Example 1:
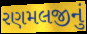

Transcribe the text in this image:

રણમલજીનું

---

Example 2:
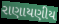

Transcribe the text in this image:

રાણાયણીય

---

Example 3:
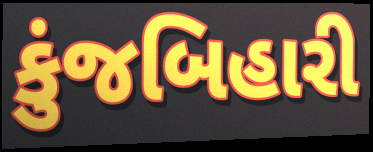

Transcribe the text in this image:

કુંજબિહારી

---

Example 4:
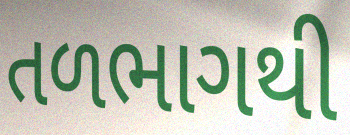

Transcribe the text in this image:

તળભાગથી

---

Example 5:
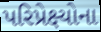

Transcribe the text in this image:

પરિપ્રેક્ષ્યોના